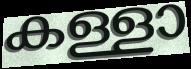
കള്ളാ